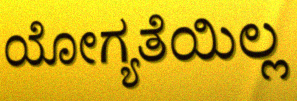
ಯೋಗ್ಯತೆಯಿಲ್ಲ